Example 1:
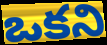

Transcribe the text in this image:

ఒకని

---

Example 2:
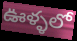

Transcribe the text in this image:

ఊళ్ళలో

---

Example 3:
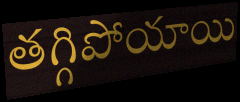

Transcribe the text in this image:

తగ్గిపోయాయి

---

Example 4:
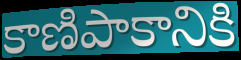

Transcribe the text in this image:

కాణిపాకానికి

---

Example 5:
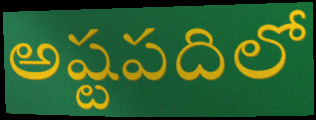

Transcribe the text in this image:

అష్టపదిలో